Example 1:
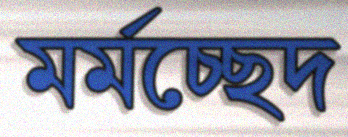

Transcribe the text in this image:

মর্মচ্ছেদ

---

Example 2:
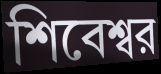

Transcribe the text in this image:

শিবেশ্বর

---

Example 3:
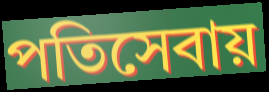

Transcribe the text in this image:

পতিসেবায়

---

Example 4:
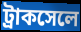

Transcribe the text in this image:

ট্রাকসেলে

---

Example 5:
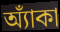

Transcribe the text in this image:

অ্যাঁকা